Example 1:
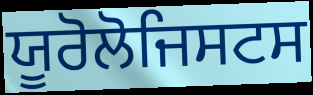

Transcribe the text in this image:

ਯੂਰੋਲੋਜਿਸਟਸ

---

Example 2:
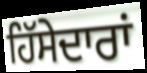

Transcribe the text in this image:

ਹਿੱਸੇਦਾਰਾਂ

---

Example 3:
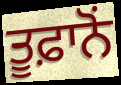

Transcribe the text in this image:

ਤੂਫ਼ਾਨੋਂ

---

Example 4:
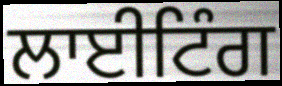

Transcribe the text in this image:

ਲਾਈਟਿੰਗ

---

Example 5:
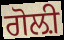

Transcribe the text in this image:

ਗੋਲ਼ੀ